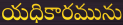
యధికారమును